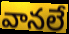
వానలే